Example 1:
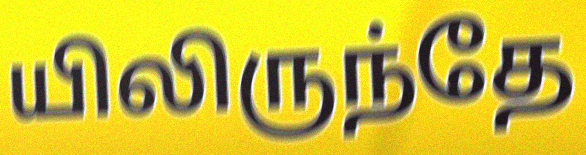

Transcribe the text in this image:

யிலிருந்தே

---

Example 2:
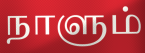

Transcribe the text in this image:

நாளும்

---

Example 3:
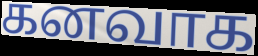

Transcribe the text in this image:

கனவாக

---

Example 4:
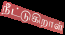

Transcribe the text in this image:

நீட்டுகிறாள்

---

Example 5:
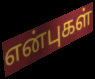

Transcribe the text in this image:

என்புகள்